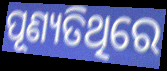
ପୂଣ୍ୟତିଥିରେ